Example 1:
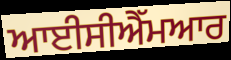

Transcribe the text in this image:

ਆਈਸੀਐੱਮਆਰ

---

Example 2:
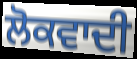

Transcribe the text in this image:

ਲੋਕਵਾਦੀ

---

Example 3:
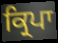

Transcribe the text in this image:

ਕ੍ਰਿਪਾ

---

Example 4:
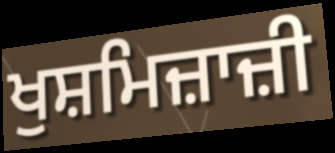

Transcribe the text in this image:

ਖੁਸ਼ਮਿਜ਼ਾਜ਼ੀ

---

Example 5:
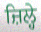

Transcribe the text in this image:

ਜ਼ਿਲ੍ਹੇ